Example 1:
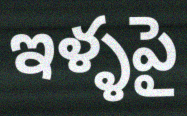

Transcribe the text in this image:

ఇళ్ళపై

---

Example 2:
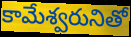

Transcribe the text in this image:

కామేశ్వరునితో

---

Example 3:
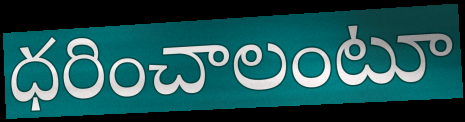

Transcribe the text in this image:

ధరించాలంటూ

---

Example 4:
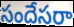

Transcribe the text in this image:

సందేసరా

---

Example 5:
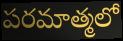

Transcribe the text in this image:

పరమాత్మలో